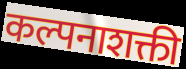
कल्पनाशक्ती